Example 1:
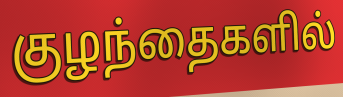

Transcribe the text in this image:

குழந்தைகளில்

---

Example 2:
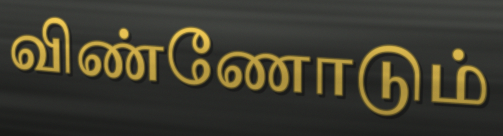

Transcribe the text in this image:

விண்ணோடும்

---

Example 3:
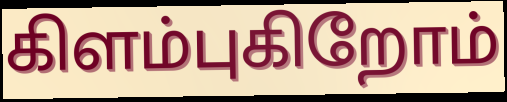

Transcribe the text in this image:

கிளம்புகிறோம்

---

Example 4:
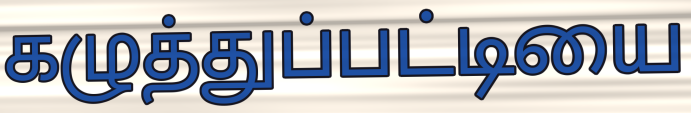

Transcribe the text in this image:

கழுத்துப்பட்டியை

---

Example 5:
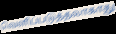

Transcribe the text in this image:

வெளிப்படுத்தலாகாது